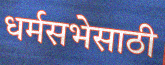
धर्मसभेसाठी